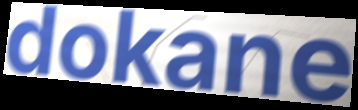
dokane